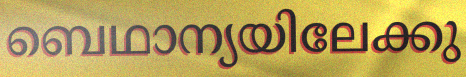
ബെഥാന്യയിലേക്കു